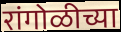
रांगोळीच्या